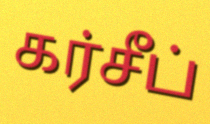
கர்சீப்